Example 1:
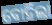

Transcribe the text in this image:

ବୋହିଲା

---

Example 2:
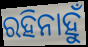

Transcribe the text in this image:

ରହିନାହୁଁ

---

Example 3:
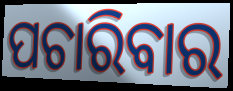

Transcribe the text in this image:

ପଚାରିବାର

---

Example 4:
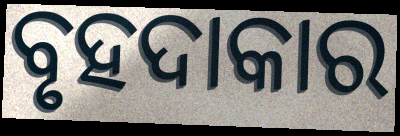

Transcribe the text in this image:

ବୃହଦାକାର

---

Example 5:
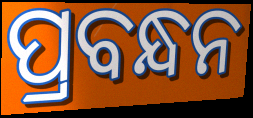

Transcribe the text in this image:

ପ୍ରବନ୍ଧନ